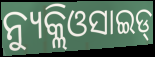
ନ୍ୟୁକ୍ଲିଓସାଇଡ୍